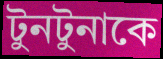
টুনটুনাকে